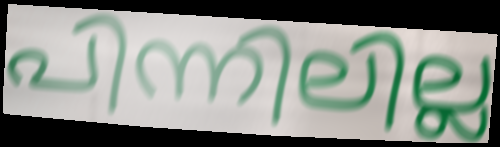
പിന്നിലില്ല